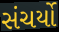
સંચર્યો